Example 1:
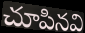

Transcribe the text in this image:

చూపినవి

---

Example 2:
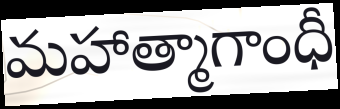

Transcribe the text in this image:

మహాత్మాగాంధీ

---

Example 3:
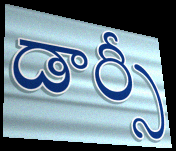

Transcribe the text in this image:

డార్సీ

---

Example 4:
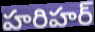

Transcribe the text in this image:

హరిహర్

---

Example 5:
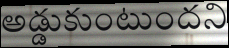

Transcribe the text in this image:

అడ్డుకుంటుందని